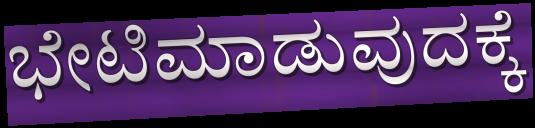
ಭೇಟಿಮಾಡುವುದಕ್ಕೆ